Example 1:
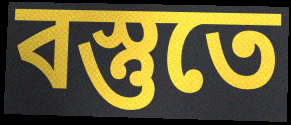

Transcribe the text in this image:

বস্তুতে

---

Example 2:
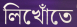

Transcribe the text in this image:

লিখোঁতে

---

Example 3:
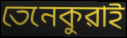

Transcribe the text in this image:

তেনেকুৱাই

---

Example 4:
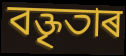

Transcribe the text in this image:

বক্তৃতাৰ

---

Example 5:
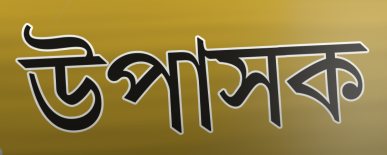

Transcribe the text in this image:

উপাসক